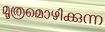
മൂത്രമൊഴിക്കുന്ന